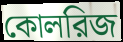
কোলরিজ